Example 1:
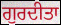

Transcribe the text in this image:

ਗੁਰਦੀਤਾ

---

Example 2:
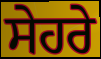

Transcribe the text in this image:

ਸੇਹਰੇ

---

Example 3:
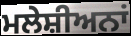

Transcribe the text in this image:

ਮਲੇਸ਼ੀਅਨਾਂ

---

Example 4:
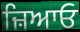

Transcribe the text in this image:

ਜ਼ਿਆਓ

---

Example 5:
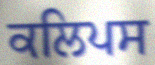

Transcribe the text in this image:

ਕਲਿਪਸ